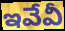
ఇవేవీ